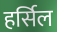
हर्सिल